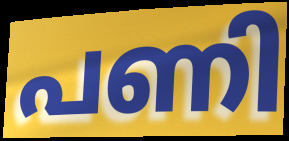
പണി